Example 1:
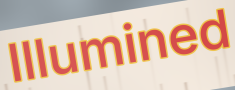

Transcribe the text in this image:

Illumined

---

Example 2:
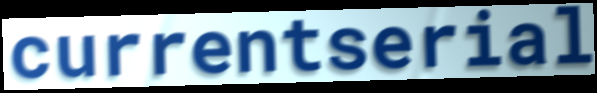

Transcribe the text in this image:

currentserial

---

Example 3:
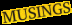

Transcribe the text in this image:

MUSINGS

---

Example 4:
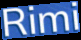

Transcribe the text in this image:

Rimi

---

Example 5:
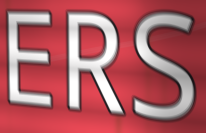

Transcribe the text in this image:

ERS